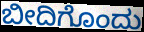
ಬೀದಿಗೊಂದು